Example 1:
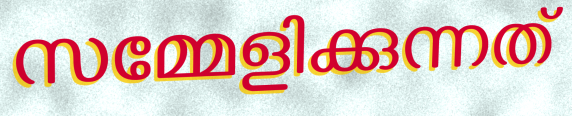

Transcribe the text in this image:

സമ്മേളിക്കുന്നത്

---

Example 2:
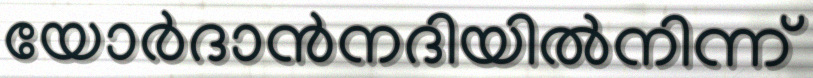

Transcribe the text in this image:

യോർദാൻനദിയിൽനിന്ന്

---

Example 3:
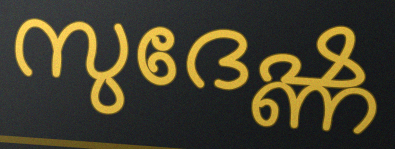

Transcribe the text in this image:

സുദേഷ്ണ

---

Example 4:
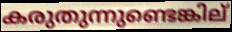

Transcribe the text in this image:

കരുതുന്നുണ്ടെങ്കില്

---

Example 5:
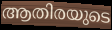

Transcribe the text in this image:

ആതിരയുടെ